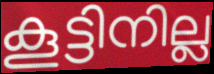
കൂട്ടിനില്ല